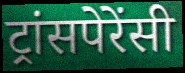
ट्रांसपेरेंसी